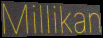
Millikan